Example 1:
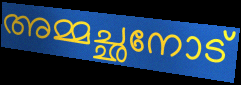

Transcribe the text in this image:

അമ്മച്ഛനോട്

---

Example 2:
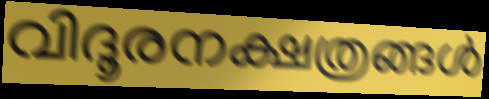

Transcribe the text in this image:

വിദൂരനക്ഷത്രങ്ങൾ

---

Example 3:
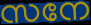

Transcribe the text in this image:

സനേ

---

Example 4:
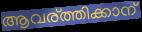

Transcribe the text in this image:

ആവര്ത്തിക്കാന്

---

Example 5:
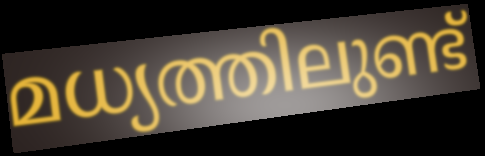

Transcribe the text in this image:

മധ്യത്തിലുണ്ട്